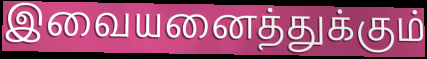
இவையனைத்துக்கும்